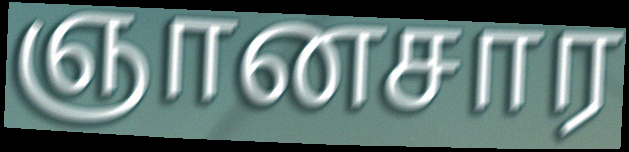
ஞானசார